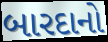
બારદાનો